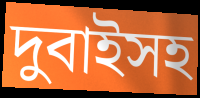
দুবাইসহ